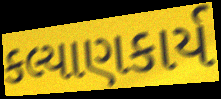
કલ્યાણકાર્ય